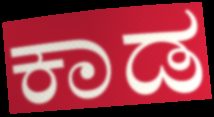
ಕಾಡ